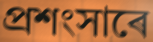
প্ৰশংসাৰে